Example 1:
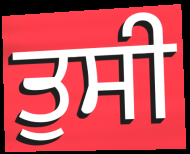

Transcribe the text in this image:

ਤੁਸੀ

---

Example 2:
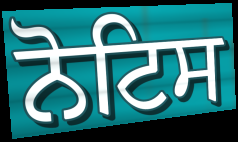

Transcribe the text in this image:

ਨੋਟਿਸ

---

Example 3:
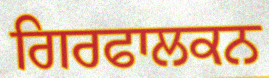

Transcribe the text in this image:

ਗਿਰਫਾਲਕਨ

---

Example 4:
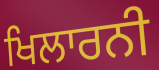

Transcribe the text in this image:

ਖਿਲਾਰਨੀ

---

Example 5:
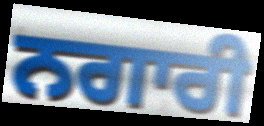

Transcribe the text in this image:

ਨਗਾਰੀ